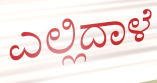
ಎಲ್ಲಿದಾಳೆ